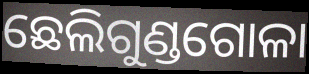
ଛେଲିଗୁଣ୍ଡଗୋଳା